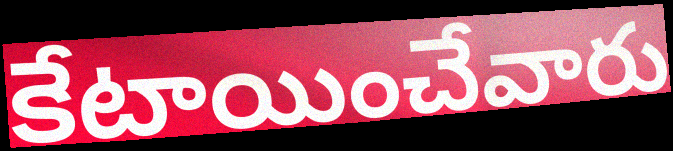
కేటాయించేవారు